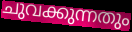
ചുവക്കുന്നതും